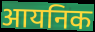
आयनिक